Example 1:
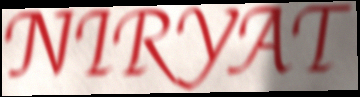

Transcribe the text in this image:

NIRYAT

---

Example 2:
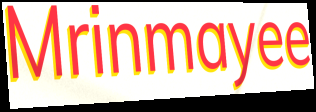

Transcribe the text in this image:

Mrinmayee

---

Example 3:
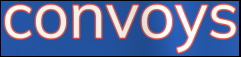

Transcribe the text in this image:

convoys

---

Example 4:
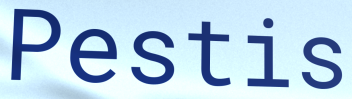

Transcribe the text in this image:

Pestis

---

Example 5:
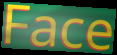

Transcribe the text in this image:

Face